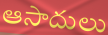
ఆసాదులు